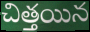
చిత్తయిన